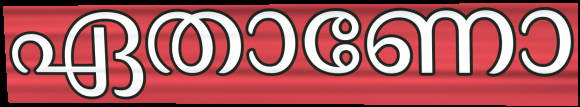
ഏതാണോ